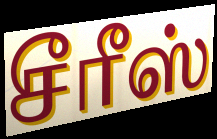
சீரீஸ்